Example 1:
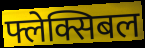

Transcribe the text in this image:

फ्लेक्सिबल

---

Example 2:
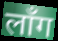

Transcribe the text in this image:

लाँग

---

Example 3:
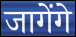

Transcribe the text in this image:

जागेंगे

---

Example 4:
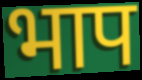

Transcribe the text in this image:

भाप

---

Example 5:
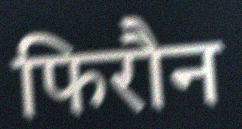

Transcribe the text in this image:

फिरौन